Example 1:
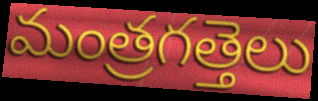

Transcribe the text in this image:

మంత్రగత్తెలు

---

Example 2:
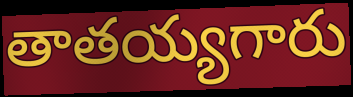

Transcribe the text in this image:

తాతయ్యగారు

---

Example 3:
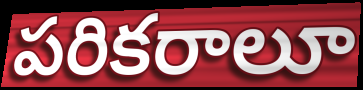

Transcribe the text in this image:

పరికరాలూ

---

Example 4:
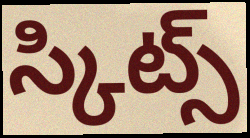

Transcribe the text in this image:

స్కిట్స్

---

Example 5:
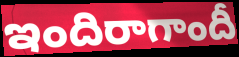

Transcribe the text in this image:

ఇందిరాగాందీ